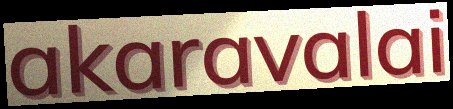
akaravalai